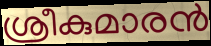
ശ്രീകുമാരൻ